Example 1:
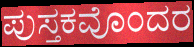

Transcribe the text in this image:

ಪುಸ್ತಕವೊಂದರ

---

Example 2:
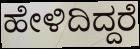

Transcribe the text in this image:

ಹೇಳಿದಿದ್ದರೆ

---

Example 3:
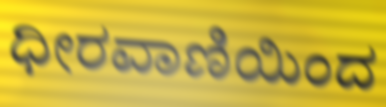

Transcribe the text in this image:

ಧೀರವಾಣಿಯಿಂದ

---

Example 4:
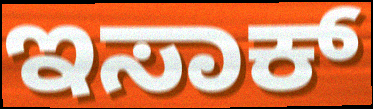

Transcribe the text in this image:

ಇಸಾಕ್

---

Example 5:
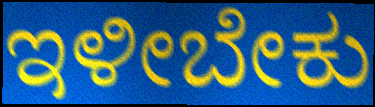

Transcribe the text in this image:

ಇಳೀಬೇಕು